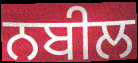
ਨਬੀਲ